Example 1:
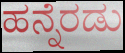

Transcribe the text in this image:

ಹನ್ನೆರಡು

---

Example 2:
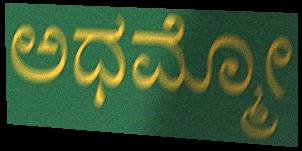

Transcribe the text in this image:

ಅಧಮ್ಮೋ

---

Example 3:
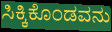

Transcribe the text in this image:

ಸಿಕ್ಕಿಕೊಂಡವನು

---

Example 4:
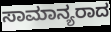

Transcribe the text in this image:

ಸಾಮಾನ್ಯರಾದ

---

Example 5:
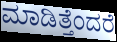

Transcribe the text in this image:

ಮಾಡಿತ್ತೆಂದರೆ